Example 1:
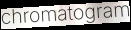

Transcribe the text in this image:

chromatogram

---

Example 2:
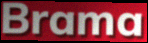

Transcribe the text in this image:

Brama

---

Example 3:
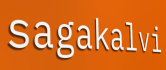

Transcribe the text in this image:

sagakalvi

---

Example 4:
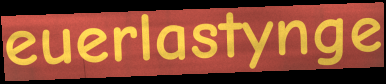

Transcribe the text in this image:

euerlastynge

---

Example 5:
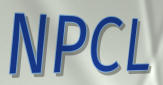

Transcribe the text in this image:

NPCL